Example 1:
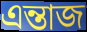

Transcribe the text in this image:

এন্তাজ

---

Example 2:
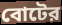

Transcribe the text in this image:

বোটের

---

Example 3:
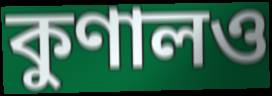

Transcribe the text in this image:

কুণালও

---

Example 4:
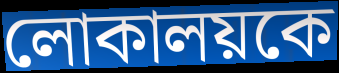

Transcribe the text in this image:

লোকালয়কে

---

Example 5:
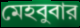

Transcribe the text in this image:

মেহবুবার